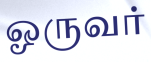
ஓருவர்